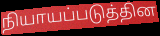
நியாயப்படுத்தின